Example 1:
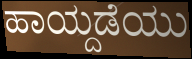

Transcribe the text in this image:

ಹಾಯ್ದಡೆಯು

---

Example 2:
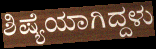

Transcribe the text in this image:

ಶಿಷ್ಯೆಯಾಗಿದ್ದಳು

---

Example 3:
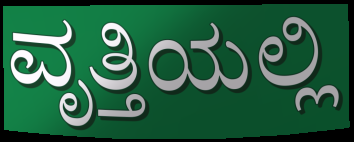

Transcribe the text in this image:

ವೃತ್ತಿಯಲ್ಲಿ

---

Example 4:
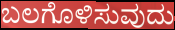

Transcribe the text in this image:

ಬಲಗೊಳಿಸುವುದು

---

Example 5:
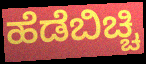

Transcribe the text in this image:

ಹೆಡೆಬಿಚ್ಚಿ